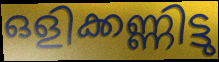
ഒളിക്കണ്ണിട്ടു